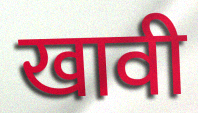
खावी